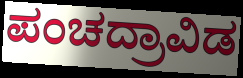
ಪಂಚದ್ರಾವಿಡ